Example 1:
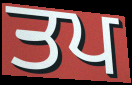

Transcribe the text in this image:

ਤਪ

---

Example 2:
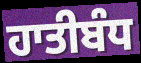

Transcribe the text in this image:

ਹਾਤੀਬੰਧ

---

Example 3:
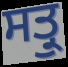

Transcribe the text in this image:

ਸਤ੍ਰੁ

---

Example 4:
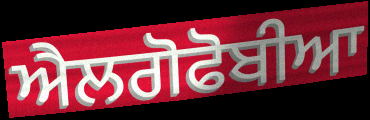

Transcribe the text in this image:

ਐਲਗੋਫੋਬੀਆ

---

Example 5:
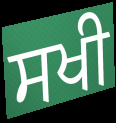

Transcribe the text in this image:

ਸਖੀ